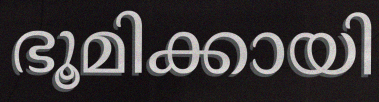
ഭൂമിക്കായി